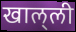
खाल्ली